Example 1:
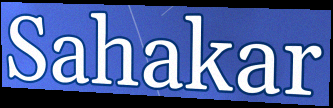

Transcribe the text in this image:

Sahakar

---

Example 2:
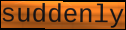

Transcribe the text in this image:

suddenly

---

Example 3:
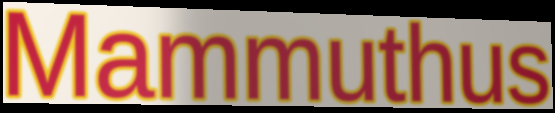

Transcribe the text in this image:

Mammuthus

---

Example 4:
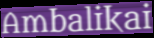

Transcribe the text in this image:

Ambalikai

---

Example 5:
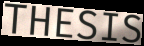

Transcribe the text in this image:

THESIS